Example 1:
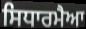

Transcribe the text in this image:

ਸਿਧਾਰਮੈਆ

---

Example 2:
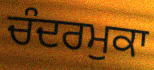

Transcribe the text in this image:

ਚੰਦਰਮੁਕਾ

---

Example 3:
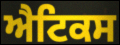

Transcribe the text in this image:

ਐਟਿਕਸ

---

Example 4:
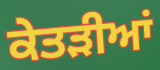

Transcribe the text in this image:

ਕੇਤੜੀਆਂ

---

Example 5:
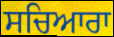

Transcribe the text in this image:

ਸਚਿਆਰਾ